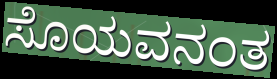
ಸೊಯವನಂತ